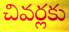
చివర్లకు